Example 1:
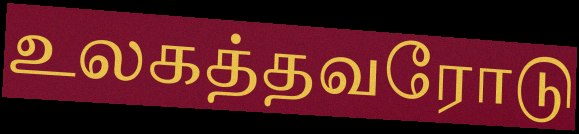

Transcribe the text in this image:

உலகத்தவரோடு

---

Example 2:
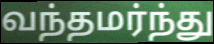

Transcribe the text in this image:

வந்தமர்ந்து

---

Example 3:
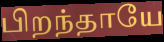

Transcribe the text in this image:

பிறந்தாயே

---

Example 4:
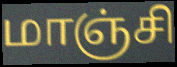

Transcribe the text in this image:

மாஞ்சி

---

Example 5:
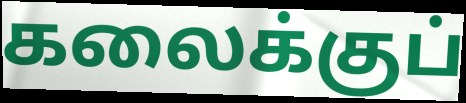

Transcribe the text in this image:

கலைக்குப்